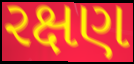
રક્ષણ